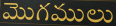
మొగములు